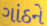
ગાંઠને